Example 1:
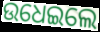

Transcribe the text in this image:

ଉଧେଇଲେ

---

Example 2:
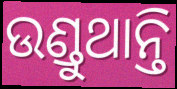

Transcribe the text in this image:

ଉଣ୍ଡୁଥାନ୍ତି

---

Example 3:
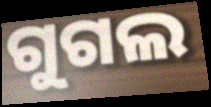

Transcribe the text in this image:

ଗୁଗଲ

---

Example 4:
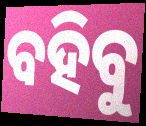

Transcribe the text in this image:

ବହିବୁ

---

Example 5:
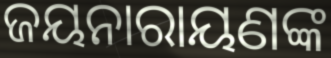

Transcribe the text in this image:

ଜୟନାରାୟଣଙ୍କ